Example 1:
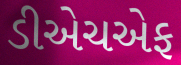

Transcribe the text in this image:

ડીએચએફ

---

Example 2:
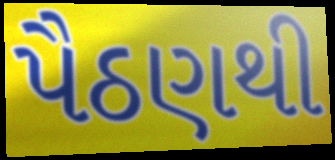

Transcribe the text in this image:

પૈઠણથી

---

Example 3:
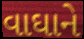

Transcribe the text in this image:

વાઘાને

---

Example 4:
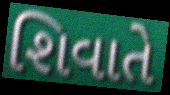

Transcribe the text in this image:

શિવાતે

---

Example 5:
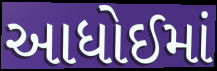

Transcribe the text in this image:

આધોઈમાં